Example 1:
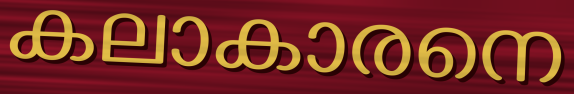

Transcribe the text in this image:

കലാകാരനെ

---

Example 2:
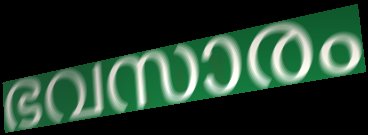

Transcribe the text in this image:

ഭവസാരം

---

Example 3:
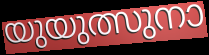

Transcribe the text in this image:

യുയുത്സുനാ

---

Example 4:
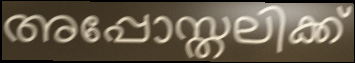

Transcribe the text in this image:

അപ്പോസ്തലിക്ക്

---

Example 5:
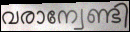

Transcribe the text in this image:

വരാന്വേണ്ടി